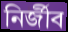
নিৰ্জীব